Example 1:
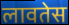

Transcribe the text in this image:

लावतेस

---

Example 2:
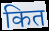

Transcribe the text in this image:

कित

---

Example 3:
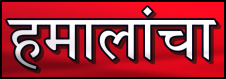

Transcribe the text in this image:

हमालांचा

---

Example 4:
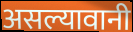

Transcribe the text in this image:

असल्यावानी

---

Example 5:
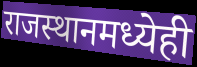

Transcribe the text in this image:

राजस्थानमध्येही